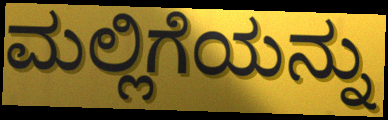
ಮಲ್ಲಿಗೆಯನ್ನು